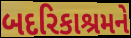
બદરિકાશ્રમને